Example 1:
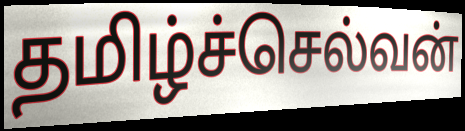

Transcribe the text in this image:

தமிழ்ச்செல்வன்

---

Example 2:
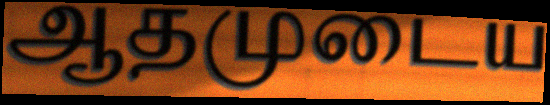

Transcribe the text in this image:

ஆதமுடைய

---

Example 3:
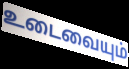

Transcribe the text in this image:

உடைவையும்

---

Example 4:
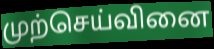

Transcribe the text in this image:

முற்செய்வினை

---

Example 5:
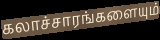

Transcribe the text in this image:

கலாச்சாரங்களையும்